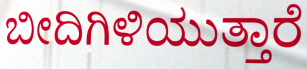
ಬೀದಿಗಿಳಿಯುತ್ತಾರೆ